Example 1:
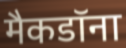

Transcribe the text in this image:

मैकडॉना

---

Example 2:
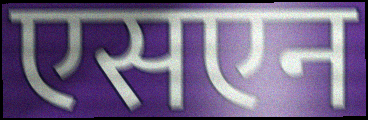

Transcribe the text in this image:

एसएन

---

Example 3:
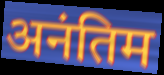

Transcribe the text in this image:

अनंतिम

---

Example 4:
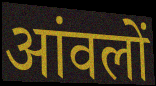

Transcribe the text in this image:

आंवलों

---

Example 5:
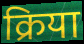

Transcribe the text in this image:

क्रिया